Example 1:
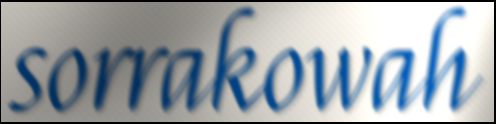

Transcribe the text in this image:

sorrakowah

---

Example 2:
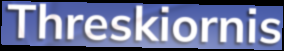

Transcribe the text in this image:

Threskiornis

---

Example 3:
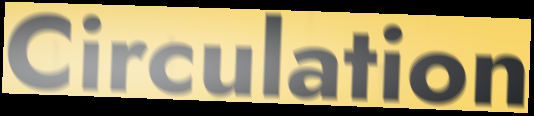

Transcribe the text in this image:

Circulation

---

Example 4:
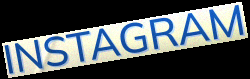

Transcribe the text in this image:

INSTAGRAM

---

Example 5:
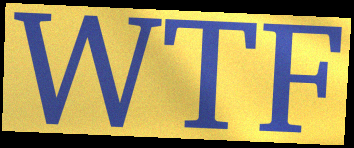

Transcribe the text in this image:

WTF